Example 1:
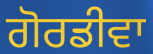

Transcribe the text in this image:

ਗੋਰਡੀਵਾ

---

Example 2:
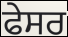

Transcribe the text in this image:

ਫੇਸਰ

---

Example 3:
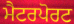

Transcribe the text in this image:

ਮੈਟਰਪੋਰਟ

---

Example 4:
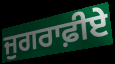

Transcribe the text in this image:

ਜੁਗਰਾਫ਼ੀਏ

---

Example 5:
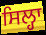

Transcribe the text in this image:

ਸਿਲ੍ਹਾ